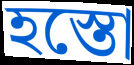
হস্তো